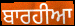
ਬਾਰਹੀਆ